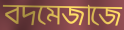
বদমেজাজে